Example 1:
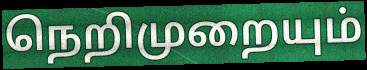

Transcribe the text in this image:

நெறிமுறையும்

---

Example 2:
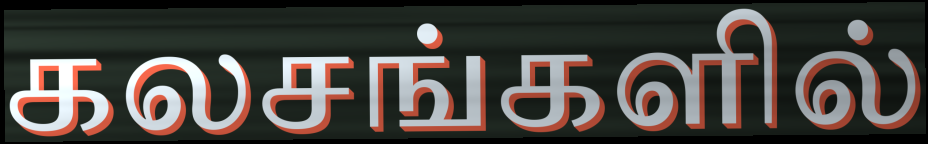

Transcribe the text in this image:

கலசங்களில்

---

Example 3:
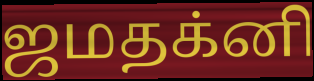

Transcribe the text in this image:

ஜமதக்னி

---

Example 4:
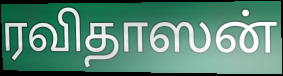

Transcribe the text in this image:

ரவிதாஸன்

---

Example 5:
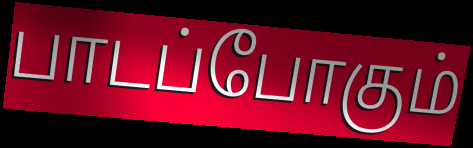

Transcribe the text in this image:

பாடப்போகும்